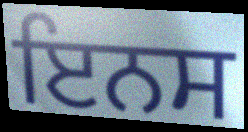
ਇਨਸ